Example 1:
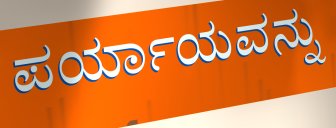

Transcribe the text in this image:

ಪರ್ಯಾಯವನ್ನು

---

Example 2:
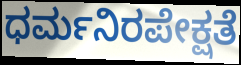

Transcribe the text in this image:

ಧರ್ಮನಿರಪೇಕ್ಷತೆ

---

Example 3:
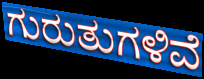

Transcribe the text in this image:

ಗುರುತುಗಳಿವೆ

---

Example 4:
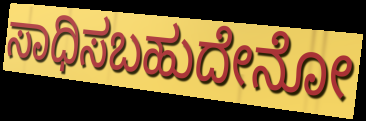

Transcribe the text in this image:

ಸಾಧಿಸಬಹುದೇನೋ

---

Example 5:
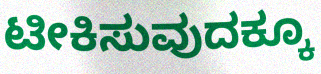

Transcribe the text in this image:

ಟೀಕಿಸುವುದಕ್ಕೂ